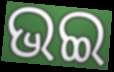
ଭଇ